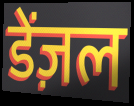
डेंज़ल